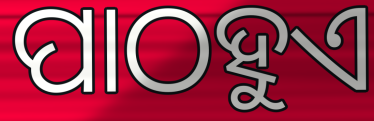
ପାଠହୁଏ